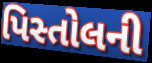
પિસ્તોલની